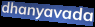
dhanyavada